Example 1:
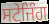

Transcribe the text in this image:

ਸਟੇਜਿੰਗ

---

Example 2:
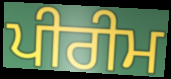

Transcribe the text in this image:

ਪੀਰੀਮ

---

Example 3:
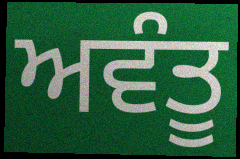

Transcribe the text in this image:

ਅਵੰਤੂ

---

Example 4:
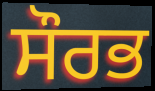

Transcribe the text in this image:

ਸੌਰਭ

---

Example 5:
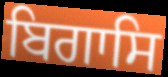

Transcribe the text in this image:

ਬਿਗਾਸਿ